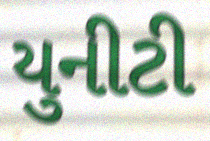
યુનીટી